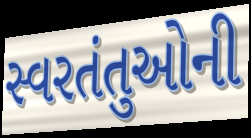
સ્વરતંતુઓની